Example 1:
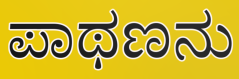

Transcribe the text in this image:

ಪಾಥಣನು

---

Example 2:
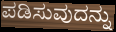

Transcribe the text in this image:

ಪಡಿಸುವುದನ್ನು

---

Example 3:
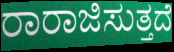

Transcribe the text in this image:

ರಾರಾಜಿಸುತ್ತದೆ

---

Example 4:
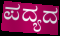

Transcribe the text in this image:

ಪದ್ಯದ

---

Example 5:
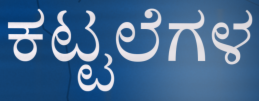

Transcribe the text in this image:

ಕಟ್ಟಲೆಗಳ